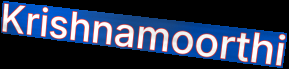
Krishnamoorthi